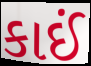
કાઈં